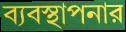
ব্যবস্থাপনার